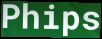
Phips